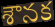
శౌనక